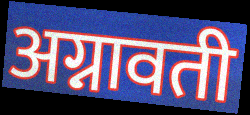
अग्नावती